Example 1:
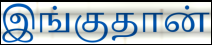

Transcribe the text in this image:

இங்குதான்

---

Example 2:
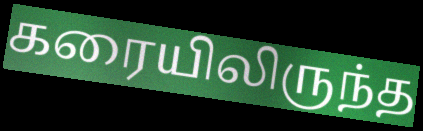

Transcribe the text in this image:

கரையிலிருந்த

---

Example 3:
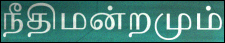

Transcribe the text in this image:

நீதிமன்றமும்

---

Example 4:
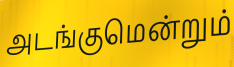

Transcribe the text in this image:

அடங்குமென்றும்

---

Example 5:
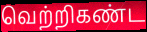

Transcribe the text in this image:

வெற்றிகண்ட